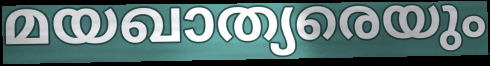
മയഖാത്യരെയും